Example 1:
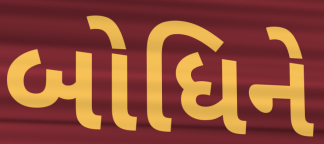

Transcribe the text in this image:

બોધિને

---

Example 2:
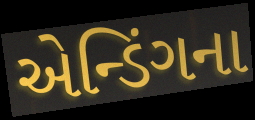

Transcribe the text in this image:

એન્ડિંગના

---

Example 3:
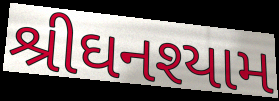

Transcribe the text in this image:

શ્રીઘનશ્યામ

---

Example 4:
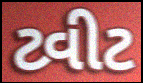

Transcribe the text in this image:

ટ્વીટ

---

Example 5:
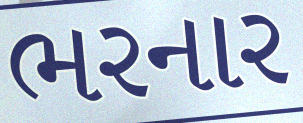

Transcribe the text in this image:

ભરનાર